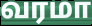
வரமா